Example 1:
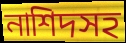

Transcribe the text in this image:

নাশিদসহ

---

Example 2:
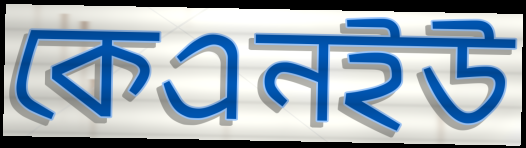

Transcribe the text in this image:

কেএনইউ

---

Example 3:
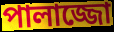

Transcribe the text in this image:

পালাজ্জো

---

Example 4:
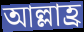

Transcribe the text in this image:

আল্লাহ্র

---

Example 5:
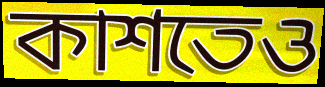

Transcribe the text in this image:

কাশতেও